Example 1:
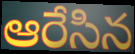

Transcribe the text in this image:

ఆరేసిన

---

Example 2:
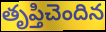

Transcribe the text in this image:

తృప్తిచెందిన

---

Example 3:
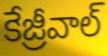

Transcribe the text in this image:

కేజ్రీవాల్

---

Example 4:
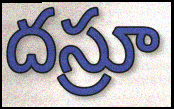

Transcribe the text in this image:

దస్రూ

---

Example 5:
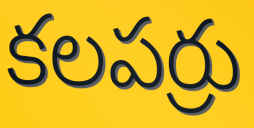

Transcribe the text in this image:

కలపర్రు